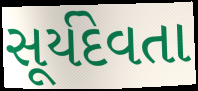
સૂર્યદેવતા